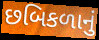
છબિકળાનું